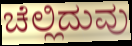
ಚೆಲ್ಲಿದುವು